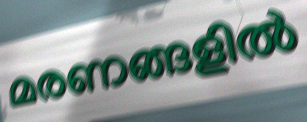
മരണങ്ങളിൽ